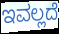
ಇವಲ್ಲದೆ